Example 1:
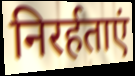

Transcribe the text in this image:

निरर्हताएं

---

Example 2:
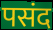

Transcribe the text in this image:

पसंद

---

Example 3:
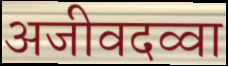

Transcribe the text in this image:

अजीवदव्वा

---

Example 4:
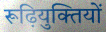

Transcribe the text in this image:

रूढ़ियुक्तियों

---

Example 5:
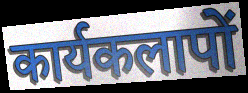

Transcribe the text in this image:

कार्यकलापों